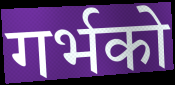
गर्भको